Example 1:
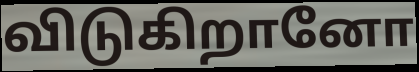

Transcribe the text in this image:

விடுகிறானோ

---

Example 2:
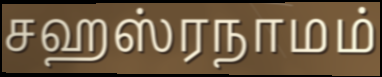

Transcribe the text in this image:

சஹஸ்ரநாமம்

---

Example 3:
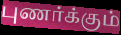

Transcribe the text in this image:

புணர்க்கும்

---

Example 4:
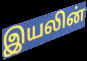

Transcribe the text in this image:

இயலின்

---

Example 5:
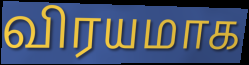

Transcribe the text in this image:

விரயமாக